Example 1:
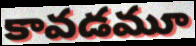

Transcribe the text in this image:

కావడమూ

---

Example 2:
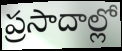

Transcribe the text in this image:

ప్రసాదాల్లో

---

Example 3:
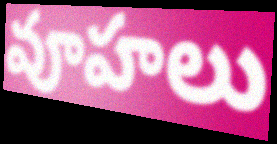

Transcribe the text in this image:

వూహలు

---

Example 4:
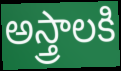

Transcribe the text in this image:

అస్త్రాలకి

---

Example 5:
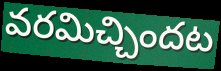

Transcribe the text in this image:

వరమిచ్చిందట